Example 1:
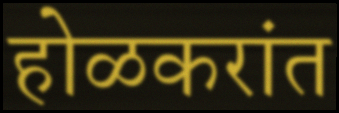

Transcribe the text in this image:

होळकरांत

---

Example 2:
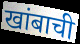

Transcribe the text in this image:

खांबाची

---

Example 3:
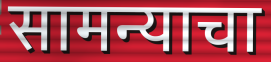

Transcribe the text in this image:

सामन्याचा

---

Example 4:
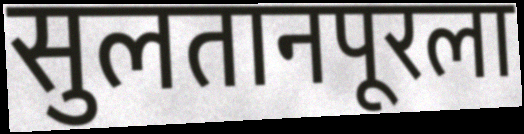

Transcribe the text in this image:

सुलतानपूरला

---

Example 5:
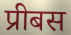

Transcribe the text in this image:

प्रीबस